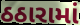
ઠઠારામાં